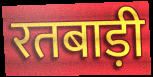
रतबाड़ी